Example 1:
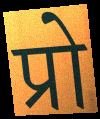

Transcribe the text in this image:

प्रो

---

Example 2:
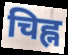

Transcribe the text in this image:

चिह्न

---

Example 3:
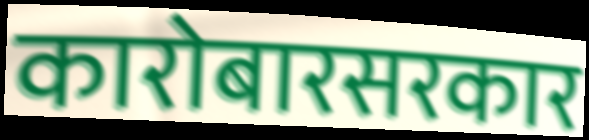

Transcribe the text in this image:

कारोबारसरकार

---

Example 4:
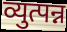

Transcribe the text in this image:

व्युत्पन्न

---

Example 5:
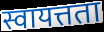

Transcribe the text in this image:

स्वायत्तता